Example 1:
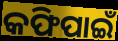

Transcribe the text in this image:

କଫିପାଇଁ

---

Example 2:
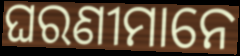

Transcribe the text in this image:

ଘରଣୀମାନେ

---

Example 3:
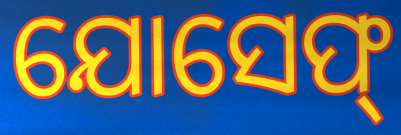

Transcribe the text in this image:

ଯୋସେଫ୍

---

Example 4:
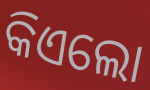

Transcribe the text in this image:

କିଏଲୋ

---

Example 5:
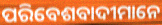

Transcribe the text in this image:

ପରିବେଶବାଦୀମାନେ